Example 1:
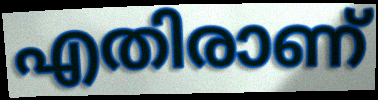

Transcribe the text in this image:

എതിരാണ്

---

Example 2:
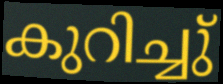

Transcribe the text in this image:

കുറിച്ചു്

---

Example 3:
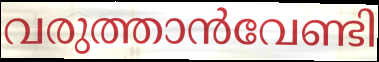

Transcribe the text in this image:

വരുത്താൻവേണ്ടി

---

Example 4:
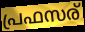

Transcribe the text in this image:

പ്രഫസര്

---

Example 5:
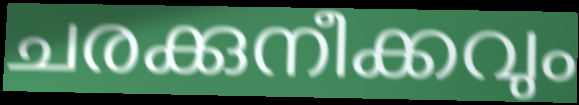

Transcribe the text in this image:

ചരക്കുനീക്കവും